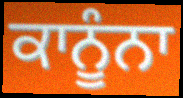
ਕਾਨੂੰਨਾ